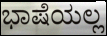
ಭಾಷೆಯಲ್ಲ